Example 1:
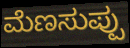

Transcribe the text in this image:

ಮೆಣಸುಪ್ಪು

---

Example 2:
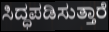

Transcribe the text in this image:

ಸಿದ್ಧಪಡಿಸುತ್ತಾರೆ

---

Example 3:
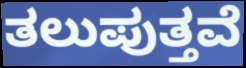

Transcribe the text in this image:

ತಲುಪುತ್ತವೆ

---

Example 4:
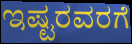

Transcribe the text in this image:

ಇಷ್ಟರವರಗೆ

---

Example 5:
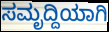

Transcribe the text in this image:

ಸಮೃದ್ದಿಯಾಗಿ